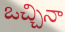
ఒచ్చినా